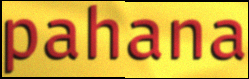
pahana